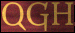
QGH